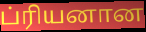
ப்ரியனான